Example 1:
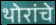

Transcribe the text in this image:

थोरांचे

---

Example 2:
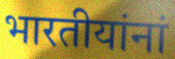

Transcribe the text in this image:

भारतीयांनां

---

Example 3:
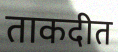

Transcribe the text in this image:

ताकदीत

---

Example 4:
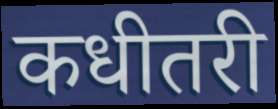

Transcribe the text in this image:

कधीतरी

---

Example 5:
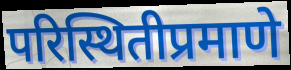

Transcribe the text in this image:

परिस्थितीप्रमाणे